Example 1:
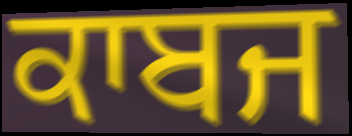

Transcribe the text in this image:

ਕਾਬਜ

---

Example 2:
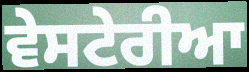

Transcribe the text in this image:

ਵੇਸਟੇਰੀਆ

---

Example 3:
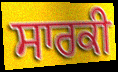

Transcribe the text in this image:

ਸਾਰਕੀ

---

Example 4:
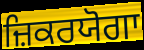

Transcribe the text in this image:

ਜ਼ਿਕਰਯੋਗਾ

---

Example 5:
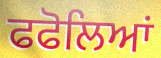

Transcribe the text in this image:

ਫਫੋਲਿਆਂ